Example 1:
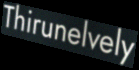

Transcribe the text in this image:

Thirunelvely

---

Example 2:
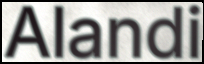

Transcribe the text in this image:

Alandi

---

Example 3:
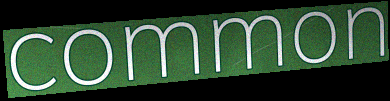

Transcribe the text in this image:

common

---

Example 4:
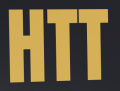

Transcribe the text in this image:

HTT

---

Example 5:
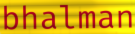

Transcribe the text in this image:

bhalman